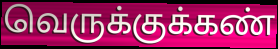
வெருக்குக்கண்